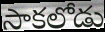
సాకలోడు